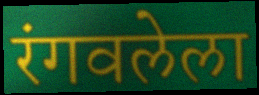
रंगवलेला